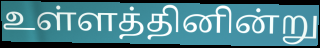
உள்ளத்தினின்று